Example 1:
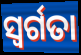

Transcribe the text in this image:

ସ୍ୱର୍ଗତା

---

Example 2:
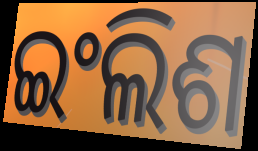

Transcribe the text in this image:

ଇଂଲିଶ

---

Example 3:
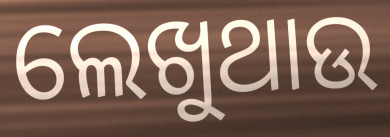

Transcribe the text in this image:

ଲେଖୁଥାଉ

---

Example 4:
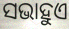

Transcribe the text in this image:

ସଭାହୁଏ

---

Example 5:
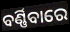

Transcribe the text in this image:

ବର୍ଣ୍ଣିବାରେ